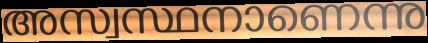
അസ്വസ്ഥനാണെന്നു